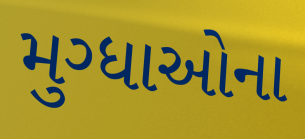
મુગ્ધાઓના